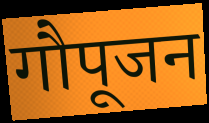
गौपूजन